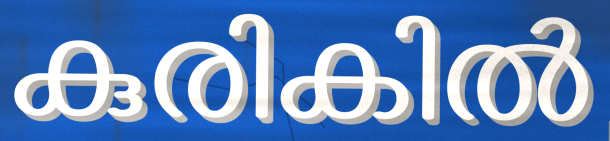
കുരികിൽ